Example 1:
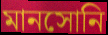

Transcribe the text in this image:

মানসোনি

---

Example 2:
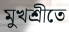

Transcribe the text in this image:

মুখশ্রীতে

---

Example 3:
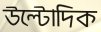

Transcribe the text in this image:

উল্টোদিক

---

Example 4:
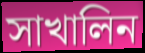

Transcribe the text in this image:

সাখালিন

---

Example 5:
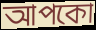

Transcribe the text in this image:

আপকো